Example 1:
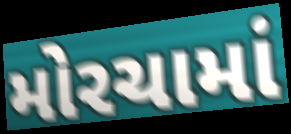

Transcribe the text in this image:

મોરચામાં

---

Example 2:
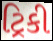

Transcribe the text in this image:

ટ્રિકી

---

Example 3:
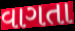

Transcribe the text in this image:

વાગતા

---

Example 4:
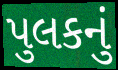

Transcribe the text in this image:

પુલકનું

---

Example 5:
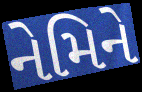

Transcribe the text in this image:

નેમિને